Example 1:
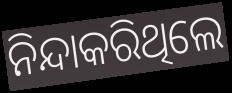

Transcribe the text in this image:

ନିନ୍ଦାକରିଥିଲେ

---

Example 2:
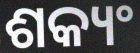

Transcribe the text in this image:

ଶକ୍ୟଂ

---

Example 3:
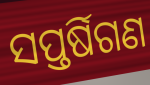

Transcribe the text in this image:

ସପ୍ତର୍ଷିଗଣ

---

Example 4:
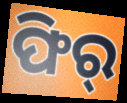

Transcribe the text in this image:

ଫିର୍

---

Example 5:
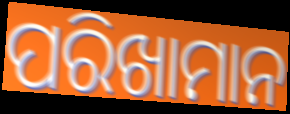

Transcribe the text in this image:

ପରିଖାମାନ